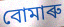
বোমাৰু